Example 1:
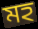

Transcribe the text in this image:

মহ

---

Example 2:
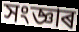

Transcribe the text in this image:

সংজ্ঞাৰ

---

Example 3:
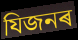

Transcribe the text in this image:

যিজনৰ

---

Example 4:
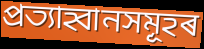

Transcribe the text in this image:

প্ৰত্যাহ্বানসমূহৰ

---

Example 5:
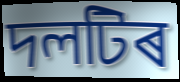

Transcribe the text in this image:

দলটিৰ